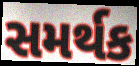
સમર્થક